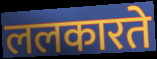
ललकारते